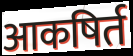
आकषिर्त